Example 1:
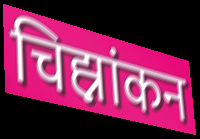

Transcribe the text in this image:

चिह्नांकन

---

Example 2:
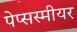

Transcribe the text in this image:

पेप्सस्मीयर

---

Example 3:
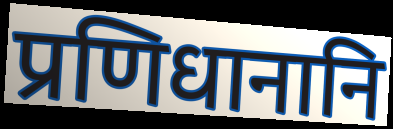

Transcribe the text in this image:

प्रणिधानानि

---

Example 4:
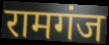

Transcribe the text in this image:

रामगंज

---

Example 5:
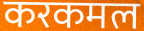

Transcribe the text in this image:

करकमल